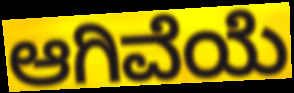
ಆಗಿವೆಯೆ